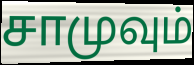
சாமுவும்